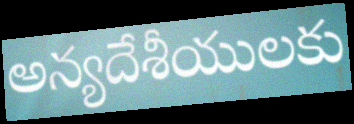
అన్యదేశీయులకు